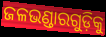
ଜଳଭଣ୍ଡାରଗୁଡ଼ିକୁ